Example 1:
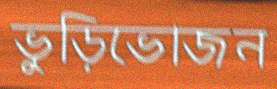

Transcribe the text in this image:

ভুড়িভোজন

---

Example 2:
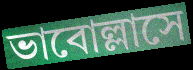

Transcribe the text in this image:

ভাবোল্লাসে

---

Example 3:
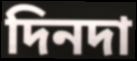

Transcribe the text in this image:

দিনদা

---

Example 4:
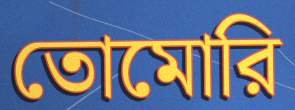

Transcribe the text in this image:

তোমোরি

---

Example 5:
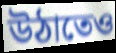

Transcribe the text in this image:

উঠাতেও